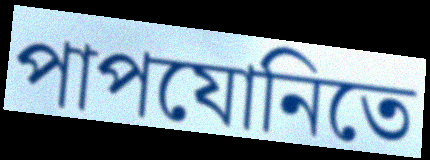
পাপযোনিতে